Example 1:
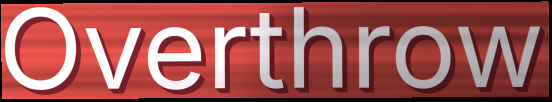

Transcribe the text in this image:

Overthrow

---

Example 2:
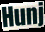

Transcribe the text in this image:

Hunj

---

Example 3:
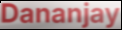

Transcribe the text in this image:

Dananjay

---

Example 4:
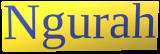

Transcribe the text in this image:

Ngurah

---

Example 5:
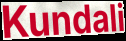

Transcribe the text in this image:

Kundali